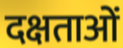
दक्षताओं